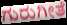
ಗುರುಗೀತೆ